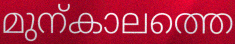
മുന്കാലത്തെ